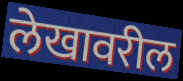
लेखावरील